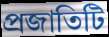
প্রজাতিটি